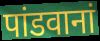
पांडवानां